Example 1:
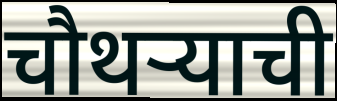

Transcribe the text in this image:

चौथऱ्याची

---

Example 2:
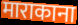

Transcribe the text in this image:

माराकाना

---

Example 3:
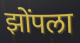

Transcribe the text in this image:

झोंपला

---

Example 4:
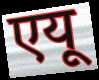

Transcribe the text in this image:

एयू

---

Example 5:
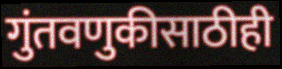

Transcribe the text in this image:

गुंतवणुकीसाठीही